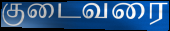
குடைவரை